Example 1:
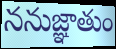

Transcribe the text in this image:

ననుజ్ఞాతుం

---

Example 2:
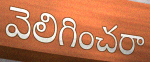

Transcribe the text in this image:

వెలిగించరా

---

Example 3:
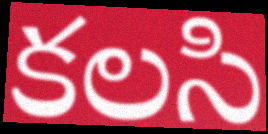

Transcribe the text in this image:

కలసి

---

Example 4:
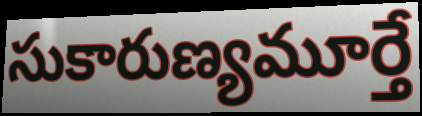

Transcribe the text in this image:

సుకారుణ్యమూర్తే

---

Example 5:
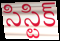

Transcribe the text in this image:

సిస్టిక్